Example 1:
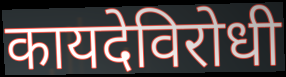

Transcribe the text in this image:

कायदेविरोधी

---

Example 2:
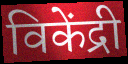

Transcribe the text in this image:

विकेंद्री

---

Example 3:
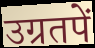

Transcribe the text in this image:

उग्रतपें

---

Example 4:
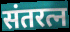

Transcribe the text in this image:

संतरत्न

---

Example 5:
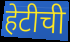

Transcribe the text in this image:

हेटीची